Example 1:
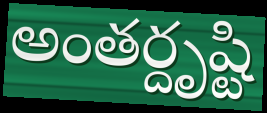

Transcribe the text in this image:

అంతర్దృష్టి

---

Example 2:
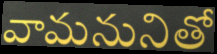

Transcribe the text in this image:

వామనునితో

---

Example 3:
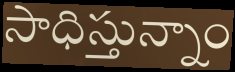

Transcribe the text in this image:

సాధిస్తున్నాం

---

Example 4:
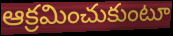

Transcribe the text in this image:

ఆక్రమించుకుంటూ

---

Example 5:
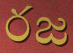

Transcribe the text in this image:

రజ